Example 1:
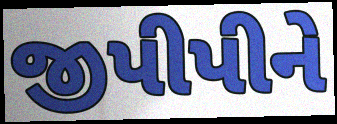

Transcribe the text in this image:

જીપીપીને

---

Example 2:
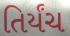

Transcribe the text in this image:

તિર્યંચ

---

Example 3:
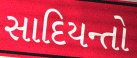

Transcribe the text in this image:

સાદિયન્તો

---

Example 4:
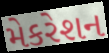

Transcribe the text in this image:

મેકરેશન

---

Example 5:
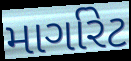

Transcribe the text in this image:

માર્ગારેટ